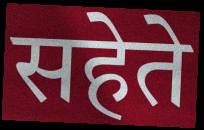
सहेते